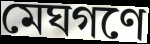
মেঘগণে